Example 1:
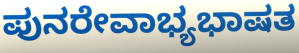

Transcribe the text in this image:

ಪುನರೇವಾಭ್ಯಭಾಷತ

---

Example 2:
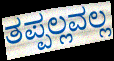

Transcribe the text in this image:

ತಪ್ಪಲ್ಲವಲ್ಲ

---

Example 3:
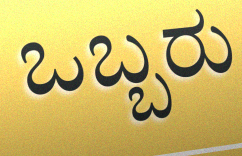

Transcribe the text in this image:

ಒಬ್ಬರು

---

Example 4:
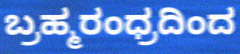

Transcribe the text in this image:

ಬ್ರಹ್ಮರಂಧ್ರದಿಂದ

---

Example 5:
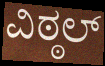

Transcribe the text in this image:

ವಿಠ್ಠಲ್